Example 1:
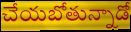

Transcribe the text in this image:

చేయబోతున్నాడో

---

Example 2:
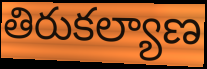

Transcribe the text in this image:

తిరుకల్యాణ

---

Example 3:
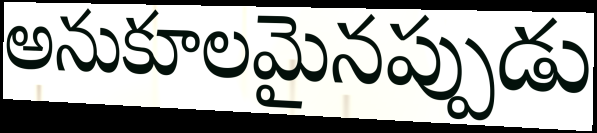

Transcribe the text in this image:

అనుకూలమైనప్పుడు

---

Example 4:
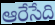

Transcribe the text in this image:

ఆరేసేది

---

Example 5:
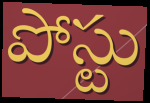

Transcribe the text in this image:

పోస్టు